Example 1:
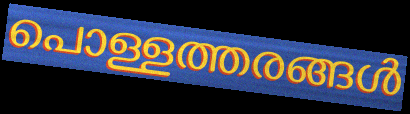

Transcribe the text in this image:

പൊള്ളത്തരങ്ങൾ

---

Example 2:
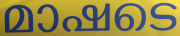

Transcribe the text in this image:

മാഷടെ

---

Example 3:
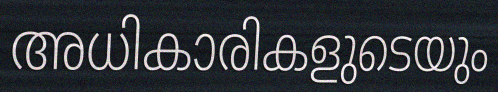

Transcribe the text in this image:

അധികാരികളുടെയും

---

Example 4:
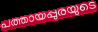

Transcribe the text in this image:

പത്തായപ്പുരയുടെ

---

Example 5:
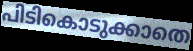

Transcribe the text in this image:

പിടികൊടുക്കാതെ